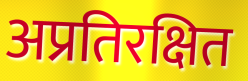
अप्रतिरक्षित